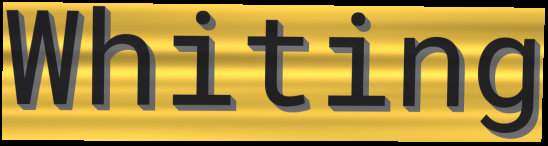
Whiting